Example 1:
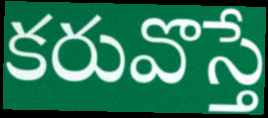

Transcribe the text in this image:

కరువొస్తే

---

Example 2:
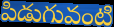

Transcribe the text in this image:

పిడుగువంటి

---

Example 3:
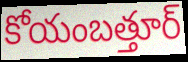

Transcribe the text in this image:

కోయంబత్తూర్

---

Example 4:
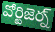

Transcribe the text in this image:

వోర్టిజెర్న్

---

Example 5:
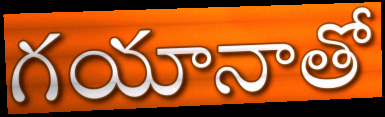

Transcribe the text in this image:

గయానాతో